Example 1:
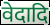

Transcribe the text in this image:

वेदादि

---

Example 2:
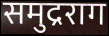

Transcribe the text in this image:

समुद्रराग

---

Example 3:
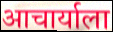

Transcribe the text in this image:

आचार्याला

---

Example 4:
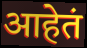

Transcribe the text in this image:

आहेतं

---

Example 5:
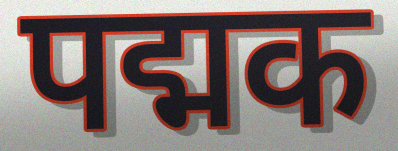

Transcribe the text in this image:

पद्मक